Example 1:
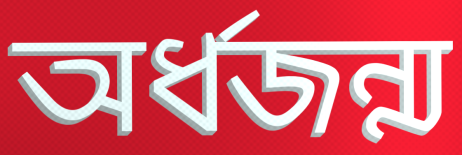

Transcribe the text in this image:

অর্ধজন্ম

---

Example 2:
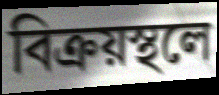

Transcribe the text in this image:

বিক্রয়স্থলে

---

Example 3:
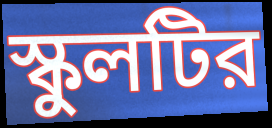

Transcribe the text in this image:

স্কুলটির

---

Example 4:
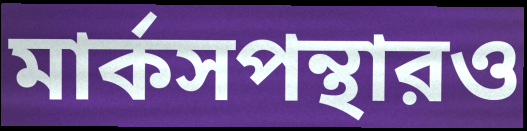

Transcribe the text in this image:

মার্কসপন্থারও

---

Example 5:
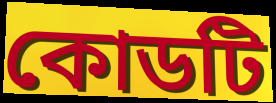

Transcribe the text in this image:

কোডটি